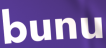
bunu